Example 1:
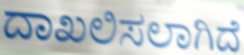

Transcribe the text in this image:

ದಾಖಲಿಸಲಾಗಿದೆ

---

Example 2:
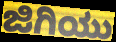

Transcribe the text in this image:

ಜಿಗಿಯು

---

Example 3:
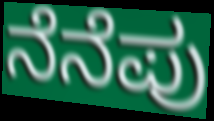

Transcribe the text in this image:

ನೆನೆಪು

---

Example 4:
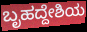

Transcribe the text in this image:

ಬೃಹದ್ದೇಶಿಯ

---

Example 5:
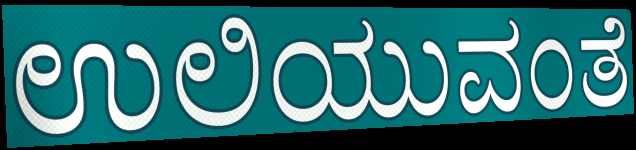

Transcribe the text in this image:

ಉಲಿಯುವಂತೆ